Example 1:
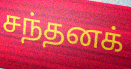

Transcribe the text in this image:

சந்தனக்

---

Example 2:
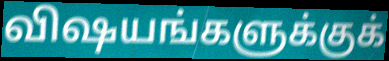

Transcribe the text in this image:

விஷயங்களுக்குக்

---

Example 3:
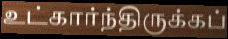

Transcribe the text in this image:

உட்கார்ந்திருக்கப்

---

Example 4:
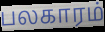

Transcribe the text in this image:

பலகாரம்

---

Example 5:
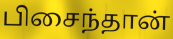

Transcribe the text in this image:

பிசைந்தான்